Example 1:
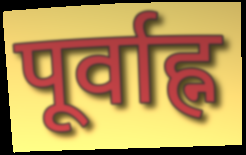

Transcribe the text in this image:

पूर्वाह्न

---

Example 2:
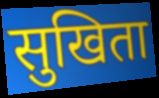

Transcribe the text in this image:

सुखिता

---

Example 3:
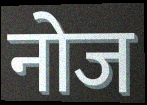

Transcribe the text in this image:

नोज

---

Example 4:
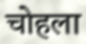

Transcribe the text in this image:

चोहला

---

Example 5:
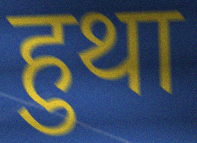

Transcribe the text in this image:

हुथा